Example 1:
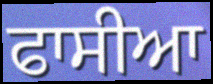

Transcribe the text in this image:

ਫਾਸੀਆ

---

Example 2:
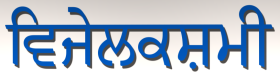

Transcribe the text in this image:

ਵਿਜੇਲਕਸ਼ਮੀ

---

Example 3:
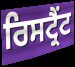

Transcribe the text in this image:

ਰਿਸਟ੍ਰੈਂਟ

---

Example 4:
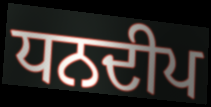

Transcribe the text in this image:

ਧਨਦੀਪ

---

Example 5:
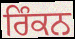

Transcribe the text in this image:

ਰਿੰਕਨ